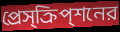
প্রেস্‌ক্রিপ্‌শনের